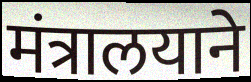
मंत्रालयाने